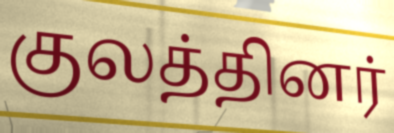
குலத்தினர்